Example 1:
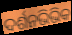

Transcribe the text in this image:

ଦର୍ଶନଭିଭିକ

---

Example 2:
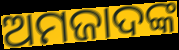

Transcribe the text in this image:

ଅମଜାଦଙ୍କ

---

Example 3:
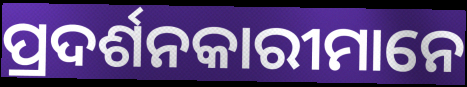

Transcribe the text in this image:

ପ୍ରଦର୍ଶନକାରୀମାନେ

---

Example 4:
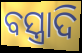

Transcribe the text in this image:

ବସ୍ତ୍ରାଦି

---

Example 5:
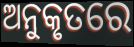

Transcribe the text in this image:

ଅନୁକୃତରେ